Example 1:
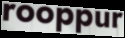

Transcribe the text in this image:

rooppur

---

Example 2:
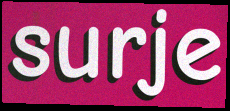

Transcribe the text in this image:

surje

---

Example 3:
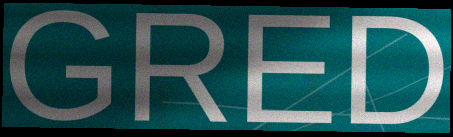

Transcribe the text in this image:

GRED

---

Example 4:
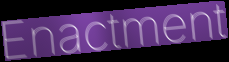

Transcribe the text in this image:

Enactment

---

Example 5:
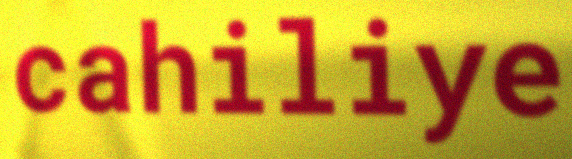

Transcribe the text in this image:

cahiliye